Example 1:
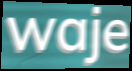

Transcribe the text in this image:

waje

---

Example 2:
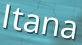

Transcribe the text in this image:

Itana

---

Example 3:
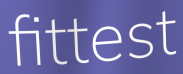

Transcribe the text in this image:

fittest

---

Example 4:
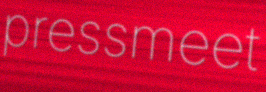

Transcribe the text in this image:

pressmeet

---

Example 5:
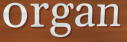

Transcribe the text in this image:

organ